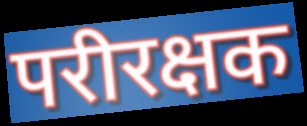
परीरक्षक